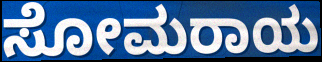
ಸೋಮರಾಯ